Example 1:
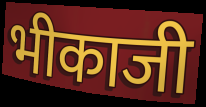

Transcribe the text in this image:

भीकाजी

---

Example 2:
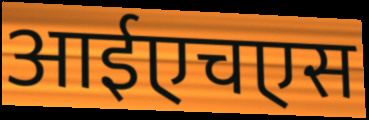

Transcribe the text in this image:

आईएचएस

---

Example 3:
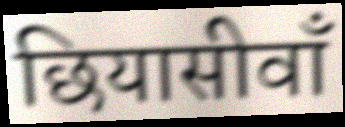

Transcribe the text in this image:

छियासीवाँ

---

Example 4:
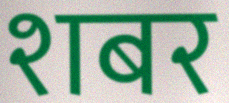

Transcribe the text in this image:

शबर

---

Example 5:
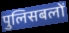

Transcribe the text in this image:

पुलिसबलों